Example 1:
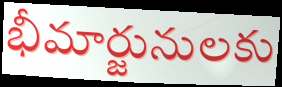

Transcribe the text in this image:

భీమార్జునులకు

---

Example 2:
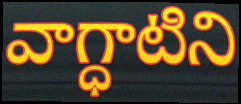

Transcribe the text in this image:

వాగ్ధాటిని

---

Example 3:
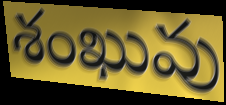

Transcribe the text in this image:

శంఖువు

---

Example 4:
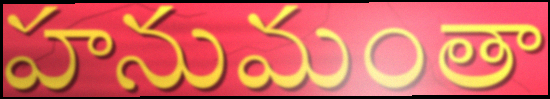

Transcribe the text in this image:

హనుమంతా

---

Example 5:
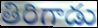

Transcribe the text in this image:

తిరిగాడు